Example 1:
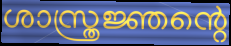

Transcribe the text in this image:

ശാസ്ത്രജ്ഞന്റെ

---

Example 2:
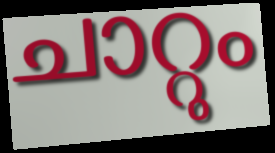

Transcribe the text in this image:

ചാറ്റും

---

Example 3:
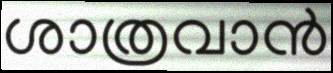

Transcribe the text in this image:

ശാത്രവാൻ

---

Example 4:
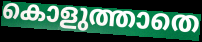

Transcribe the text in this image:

കൊളുത്താതെ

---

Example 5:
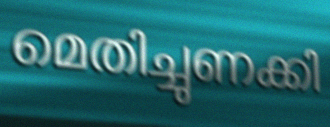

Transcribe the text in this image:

മെതിച്ചുണക്കി